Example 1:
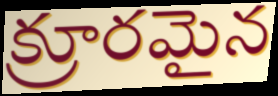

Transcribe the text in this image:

క్రూరమైన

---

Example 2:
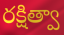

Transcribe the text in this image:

రక్షిత్వా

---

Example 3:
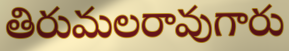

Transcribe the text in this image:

తిరుమలరావుగారు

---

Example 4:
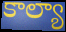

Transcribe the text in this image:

కాల్యా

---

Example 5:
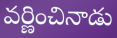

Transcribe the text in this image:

వర్ణించినాడు